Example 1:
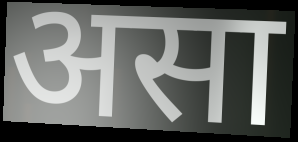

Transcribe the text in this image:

असा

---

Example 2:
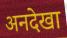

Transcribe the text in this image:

अनदेखा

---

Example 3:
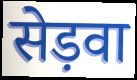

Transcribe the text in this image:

सेड़वा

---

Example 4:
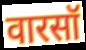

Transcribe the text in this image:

वारसॉ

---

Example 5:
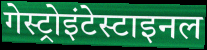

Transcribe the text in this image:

गेस्ट्रोइंटेस्टाइनल